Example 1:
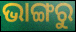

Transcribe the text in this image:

ଭାଙ୍ଗରୁ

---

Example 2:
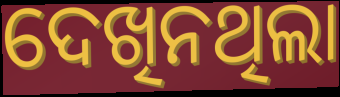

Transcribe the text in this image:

ଦେଖିନଥିଲା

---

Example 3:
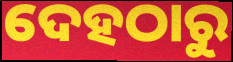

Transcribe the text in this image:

ଦେହଠାରୁ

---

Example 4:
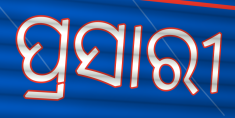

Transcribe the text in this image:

ପ୍ରସାରୀ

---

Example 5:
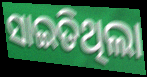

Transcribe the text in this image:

ସାଇତିଥିଲା